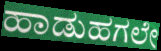
ಹಾಡುಹಗಲೇ